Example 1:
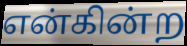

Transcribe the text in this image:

என்கின்ற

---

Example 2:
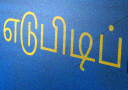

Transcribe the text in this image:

எடுபிடிப்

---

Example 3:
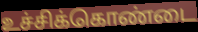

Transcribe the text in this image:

உச்சிக்கொண்டை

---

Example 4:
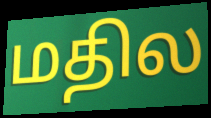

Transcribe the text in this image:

மதில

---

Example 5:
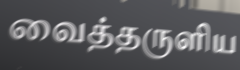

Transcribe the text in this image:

வைத்தருளிய